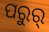
ପରୁର୍